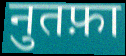
नुतफ़ा